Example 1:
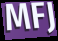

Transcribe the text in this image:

MFJ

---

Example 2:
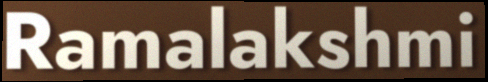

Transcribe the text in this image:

Ramalakshmi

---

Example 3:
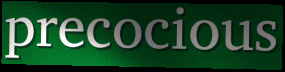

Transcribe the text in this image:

precocious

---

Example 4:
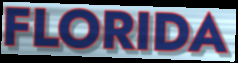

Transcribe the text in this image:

FLORIDA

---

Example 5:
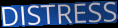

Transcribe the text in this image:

DISTRESS